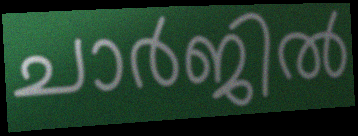
ചാർജിൽ